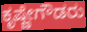
ಕೃಷ್ಣೇಗೌಡರು